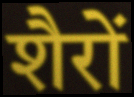
शैरों